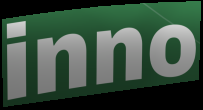
inno